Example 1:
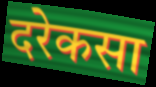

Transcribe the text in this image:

दरेकसा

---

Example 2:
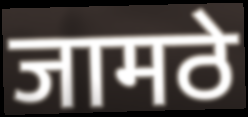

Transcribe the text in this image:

जामठे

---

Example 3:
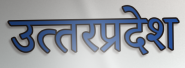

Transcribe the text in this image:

उत्‍तरप्रदेश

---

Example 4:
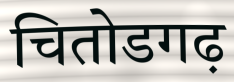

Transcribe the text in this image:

चितोडगढ़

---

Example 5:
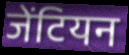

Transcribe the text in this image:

जेंटियन